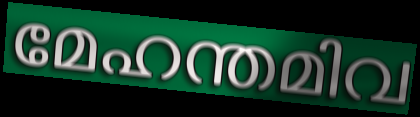
മേഹന്തമിവ